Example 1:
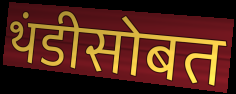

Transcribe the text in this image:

थंडीसोबत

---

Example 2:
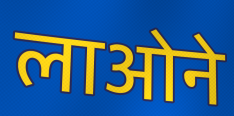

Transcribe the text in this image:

लाओने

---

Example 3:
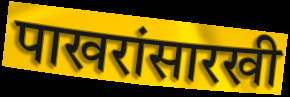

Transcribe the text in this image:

पाखरांसारखी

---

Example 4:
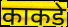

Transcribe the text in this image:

काकडे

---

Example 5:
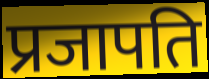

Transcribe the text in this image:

प्रजापति